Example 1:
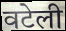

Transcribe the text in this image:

वटेली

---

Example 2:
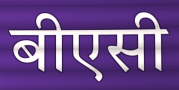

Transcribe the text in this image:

बीएसी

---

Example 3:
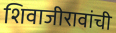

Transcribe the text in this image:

शिवाजीरावांची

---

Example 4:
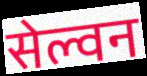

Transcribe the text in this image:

सेल्वन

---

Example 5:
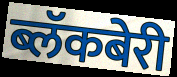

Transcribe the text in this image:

ब्लॅकबेरी